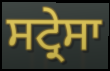
ਸਟ੍ਰੇਸਾ